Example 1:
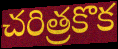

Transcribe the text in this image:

చరిత్రకొక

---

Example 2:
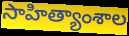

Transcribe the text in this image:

సాహిత్యాంశాల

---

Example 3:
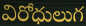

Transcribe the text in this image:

విరోధులుగ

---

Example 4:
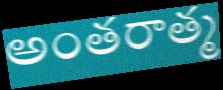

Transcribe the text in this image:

అంతరాత్మ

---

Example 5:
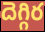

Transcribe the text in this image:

దెగ్గిర